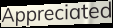
Appreciated